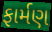
ફાર્મણ